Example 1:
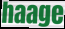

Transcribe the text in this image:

haage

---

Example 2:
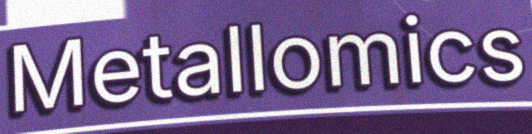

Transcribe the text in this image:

Metallomics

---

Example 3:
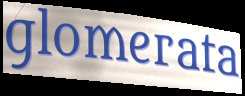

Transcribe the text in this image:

glomerata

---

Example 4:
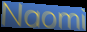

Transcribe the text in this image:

Naomi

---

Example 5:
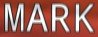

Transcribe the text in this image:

MARK